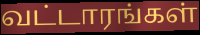
வட்டாரங்கள்